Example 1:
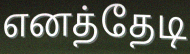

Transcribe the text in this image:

எனத்தேடி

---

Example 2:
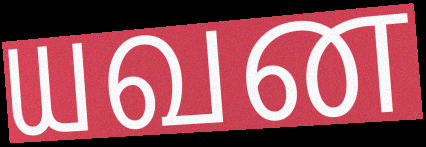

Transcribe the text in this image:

யவன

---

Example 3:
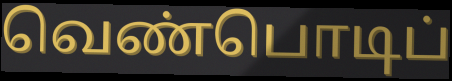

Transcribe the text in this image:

வெண்பொடிப்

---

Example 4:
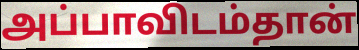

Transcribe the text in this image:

அப்பாவிடம்தான்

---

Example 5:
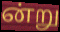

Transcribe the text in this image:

ன்று